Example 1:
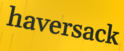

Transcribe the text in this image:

haversack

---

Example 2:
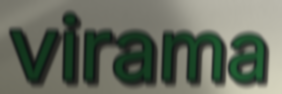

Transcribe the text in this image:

virama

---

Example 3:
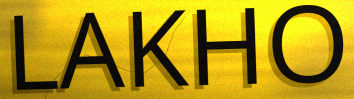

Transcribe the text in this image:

LAKHO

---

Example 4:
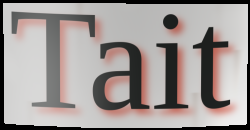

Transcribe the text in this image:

Tait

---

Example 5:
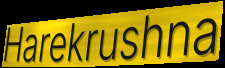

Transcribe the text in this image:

Harekrushna